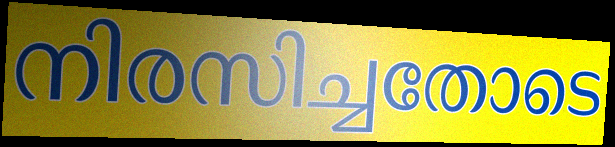
നിരസിച്ചതോടെ